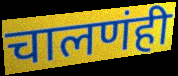
चालणंही